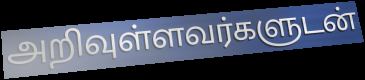
அறிவுள்ளவர்களுடன்